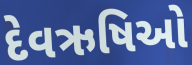
દેવઋષિઓ